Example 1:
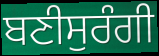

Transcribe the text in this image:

ਬਣੀਸੁਰੰਗੀ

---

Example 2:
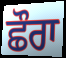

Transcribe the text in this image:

ਛੌਰਾ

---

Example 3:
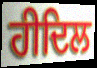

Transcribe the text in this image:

ਹੀਦਿਲ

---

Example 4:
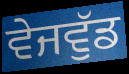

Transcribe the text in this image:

ਵੇਜਵੁੱਡ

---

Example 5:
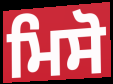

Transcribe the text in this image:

ਮਿਸੋ